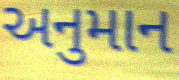
અનુમાન